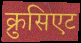
क्रुसिएट